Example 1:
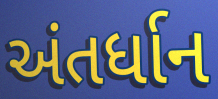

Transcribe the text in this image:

અંતર્ધાન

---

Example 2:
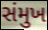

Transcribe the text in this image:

સંમુખ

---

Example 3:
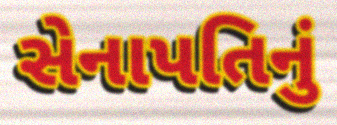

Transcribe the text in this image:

સેનાપતિનું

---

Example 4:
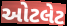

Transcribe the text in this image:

ઓટલેટ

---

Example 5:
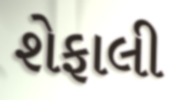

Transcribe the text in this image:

શેફાલી